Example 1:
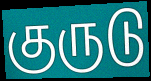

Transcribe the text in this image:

குருடு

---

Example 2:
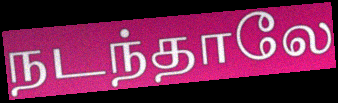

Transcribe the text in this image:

நடந்தாலே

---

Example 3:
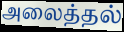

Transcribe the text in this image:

அலைத்தல்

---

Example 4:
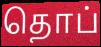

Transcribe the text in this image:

தொப்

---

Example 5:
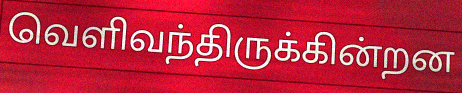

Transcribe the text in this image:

வெளிவந்திருக்கின்றன